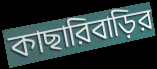
কাছারিবাড়ির